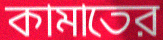
কামাতের